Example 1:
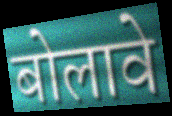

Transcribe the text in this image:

बोलावे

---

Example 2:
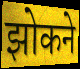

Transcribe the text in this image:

झोकने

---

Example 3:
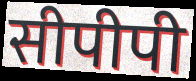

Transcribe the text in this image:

सीपीपी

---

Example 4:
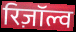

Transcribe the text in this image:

रिज़ॉल्व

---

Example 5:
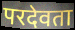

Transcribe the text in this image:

परदेवता